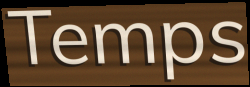
Temps